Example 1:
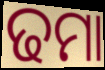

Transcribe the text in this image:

ଢମା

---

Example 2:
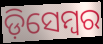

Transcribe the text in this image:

ଡ଼ିସେମ୍ୱର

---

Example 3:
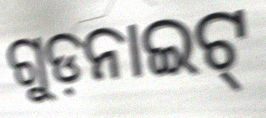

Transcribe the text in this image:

ଗୁଡ଼ନାଇଟ୍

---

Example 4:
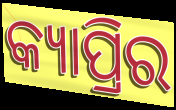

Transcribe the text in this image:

କ୍ୟାପ୍ରିର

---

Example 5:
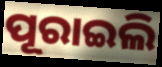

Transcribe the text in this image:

ପୂରାଇଲି